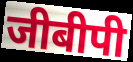
जीबीपी